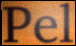
Pel